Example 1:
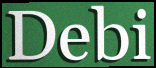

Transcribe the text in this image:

Debi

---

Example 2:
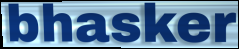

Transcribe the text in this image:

bhasker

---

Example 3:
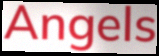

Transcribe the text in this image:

Angels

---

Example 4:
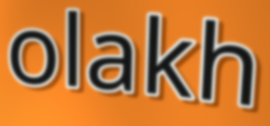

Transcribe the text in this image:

olakh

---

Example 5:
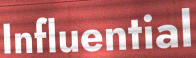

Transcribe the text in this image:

Influential